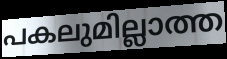
പകലുമില്ലാത്ത